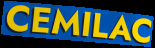
CEMILAC